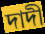
দাদী